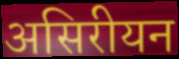
असिरीयन